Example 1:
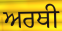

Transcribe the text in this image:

ਅਰਥੀ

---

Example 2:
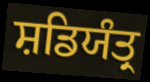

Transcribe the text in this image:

ਸ਼ਡਿਯੰਤ੍ਰ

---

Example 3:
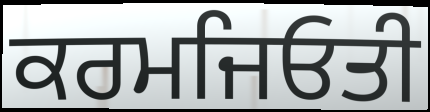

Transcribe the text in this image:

ਕਰਮਜਿਓਤੀ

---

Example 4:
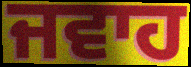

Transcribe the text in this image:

ਜਵਾਹ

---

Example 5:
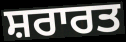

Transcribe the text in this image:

ਸ਼ਰਾਰਤ